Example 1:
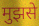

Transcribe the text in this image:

मुझसे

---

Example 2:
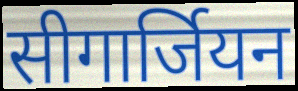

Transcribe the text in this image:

सीगार्जियन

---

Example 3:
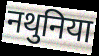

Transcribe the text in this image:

नथुनिया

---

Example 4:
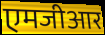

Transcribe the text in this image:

एमजीआर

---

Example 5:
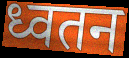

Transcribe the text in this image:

ध्वतन